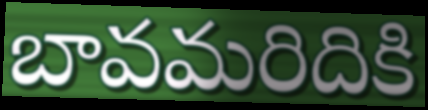
బావమరిదికి